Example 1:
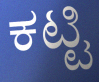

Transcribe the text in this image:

ಕಟ್ಟಿ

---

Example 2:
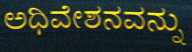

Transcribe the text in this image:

ಅಧಿವೇಶನವನ್ನು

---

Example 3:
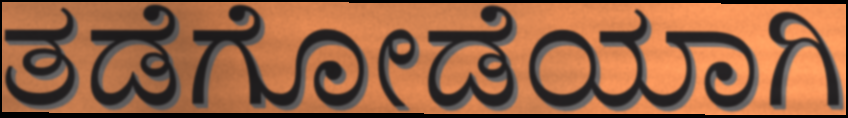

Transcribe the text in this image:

ತಡೆಗೋಡೆಯಾಗಿ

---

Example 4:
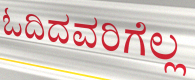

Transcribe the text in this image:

ಓದಿದವರಿಗೆಲ್ಲ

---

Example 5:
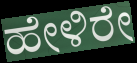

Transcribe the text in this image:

ಹೇಳಿರೇ